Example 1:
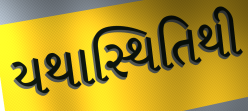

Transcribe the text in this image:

યથાસ્થિતિથી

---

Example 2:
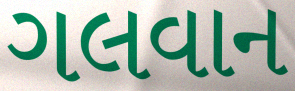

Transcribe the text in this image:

ગલવાન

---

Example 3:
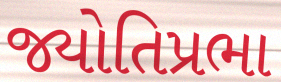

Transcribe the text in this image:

જ્યોતિપ્રભા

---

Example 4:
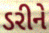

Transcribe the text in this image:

ડરીને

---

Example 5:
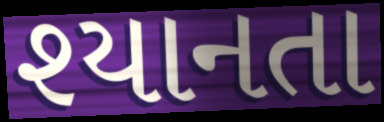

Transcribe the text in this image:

શ્યાનતા